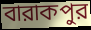
বারাকপুর